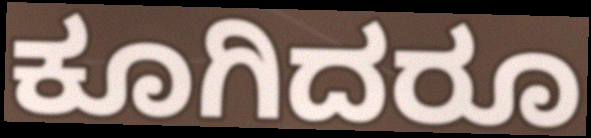
ಕೂಗಿದರೂ